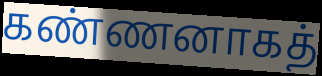
கண்ணனாகத்